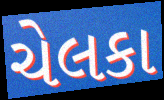
ચેલકા